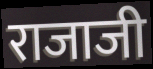
राजाजी